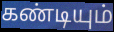
கண்டியும்